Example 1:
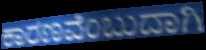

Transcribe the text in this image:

ಕಾರಣವೆಂಬುದಾಗಿ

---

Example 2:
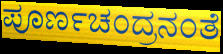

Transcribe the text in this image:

ಪೂರ್ಣಚಂದ್ರನಂತೆ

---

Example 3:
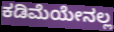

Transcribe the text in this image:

ಕಡಿಮೆಯೇನಲ್ಲ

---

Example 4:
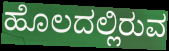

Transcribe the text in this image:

ಹೊಲದಲ್ಲಿರುವ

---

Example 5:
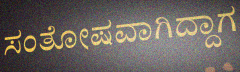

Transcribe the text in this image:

ಸಂತೋಷವಾಗಿದ್ದಾಗ